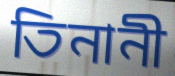
তিনানী